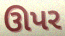
ઊપર